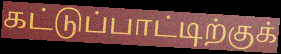
கட்டுப்பாட்டிற்குக்